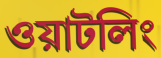
ওয়াটলিং